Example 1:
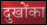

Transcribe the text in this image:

दुखोंका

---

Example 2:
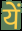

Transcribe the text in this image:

यें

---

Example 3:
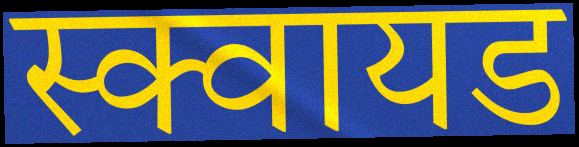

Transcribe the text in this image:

स्क्वायड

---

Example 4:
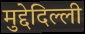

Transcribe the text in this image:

मुद्देदिल्ली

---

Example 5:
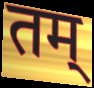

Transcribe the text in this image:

तम्